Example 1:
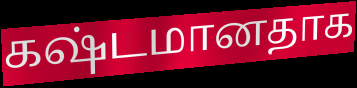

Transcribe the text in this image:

கஷ்டமானதாக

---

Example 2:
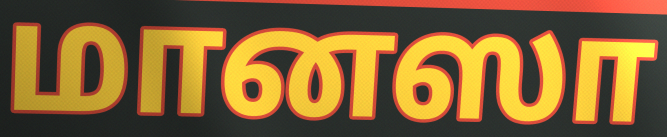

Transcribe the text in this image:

மானஸா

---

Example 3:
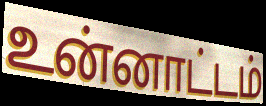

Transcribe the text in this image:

உன்னாட்டம்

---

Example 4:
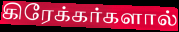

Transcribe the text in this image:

கிரேக்கர்களால்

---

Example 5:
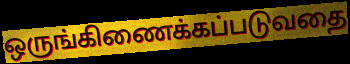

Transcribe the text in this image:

ஒருங்கிணைக்கப்படுவதை